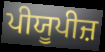
ਪੀਯੂਪੀਜ਼